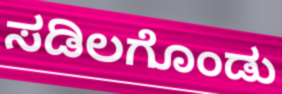
ಸಡಿಲಗೊಂಡು